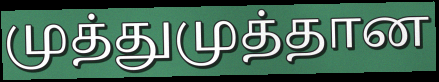
முத்துமுத்தான